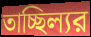
তাচ্ছিল্যর